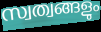
സ്വത്വങ്ങളും